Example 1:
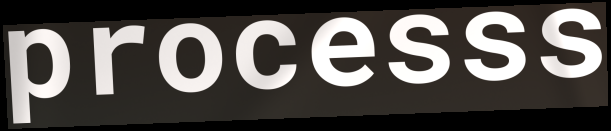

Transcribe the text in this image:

processs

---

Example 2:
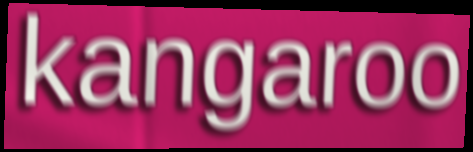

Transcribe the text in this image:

kangaroo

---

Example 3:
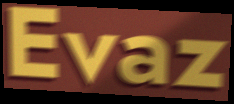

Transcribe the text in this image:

Evaz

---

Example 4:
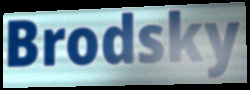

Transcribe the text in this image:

Brodsky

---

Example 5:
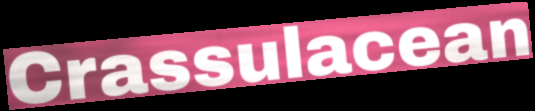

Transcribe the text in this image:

Crassulacean